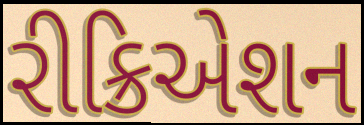
રીક્રિએશન